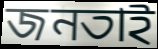
জনতাই